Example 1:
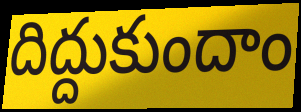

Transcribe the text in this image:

దిద్దుకుందాం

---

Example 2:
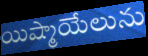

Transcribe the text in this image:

యిష్మాయేలును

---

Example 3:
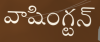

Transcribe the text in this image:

వాషింగ్టన్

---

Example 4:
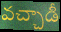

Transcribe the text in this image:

వచ్చాడీ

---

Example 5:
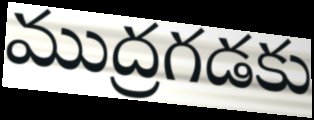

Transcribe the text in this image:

ముద్రగడకు